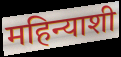
महिन्याशी